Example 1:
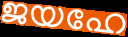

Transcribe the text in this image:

ജയഹേ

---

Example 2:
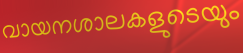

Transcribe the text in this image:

വായനശാലകളുടെയും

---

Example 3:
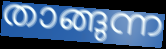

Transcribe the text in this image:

താങ്ങുന്ന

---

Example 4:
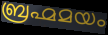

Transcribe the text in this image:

ബ്രഹ്മമയം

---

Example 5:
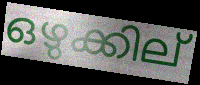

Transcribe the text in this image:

ഒഴുക്കില്